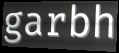
garbh